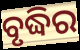
ବୃଦ୍ଧିର